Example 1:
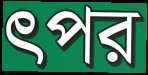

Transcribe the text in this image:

ৎপর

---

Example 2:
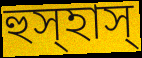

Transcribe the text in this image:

হুস্হাস্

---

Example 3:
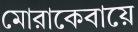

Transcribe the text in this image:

মোরাকেবায়ে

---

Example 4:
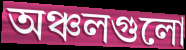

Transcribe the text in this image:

অঞ্চলগুলো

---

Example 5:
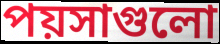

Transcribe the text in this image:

পয়সাগুলো